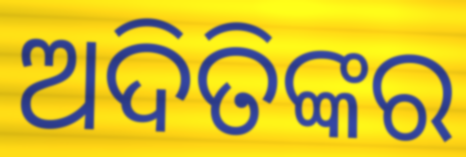
ଅଦିତିଙ୍କର